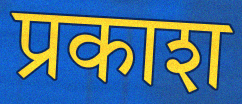
प्रकाश